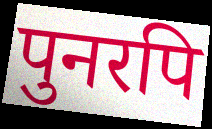
पुनरपि